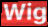
Wig